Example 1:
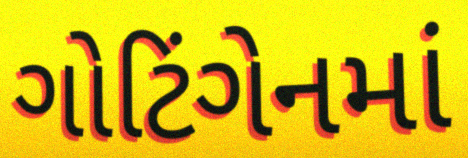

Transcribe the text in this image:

ગોટિંગેનમાં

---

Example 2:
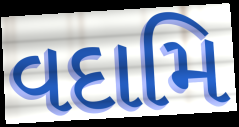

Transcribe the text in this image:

વદામિ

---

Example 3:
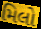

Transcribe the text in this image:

મિલો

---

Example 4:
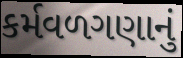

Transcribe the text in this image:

કર્મવળગણાનું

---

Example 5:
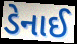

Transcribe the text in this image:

ડેનાઈ